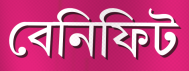
বেনিফিট